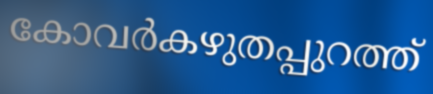
കോവർകഴുതപ്പുറത്ത്